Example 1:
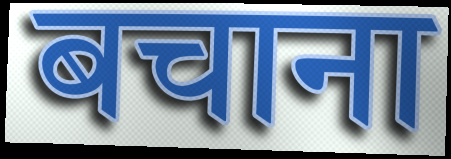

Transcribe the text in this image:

बचाना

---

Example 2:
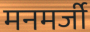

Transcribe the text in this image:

मनमर्जी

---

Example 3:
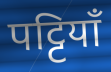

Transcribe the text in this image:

पट्टियाँ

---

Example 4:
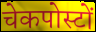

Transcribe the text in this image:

चेकपोस्टों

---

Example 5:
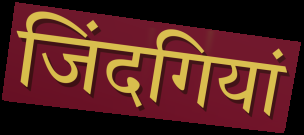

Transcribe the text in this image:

जिंदगियां